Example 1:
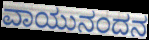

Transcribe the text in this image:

ವಾಯುನಂದನ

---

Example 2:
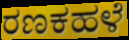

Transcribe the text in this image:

ರಣಕಹಳೆ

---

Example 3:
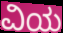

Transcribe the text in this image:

ವಿಯ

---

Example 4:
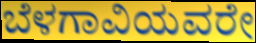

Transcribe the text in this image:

ಬೆಳಗಾವಿಯವರೇ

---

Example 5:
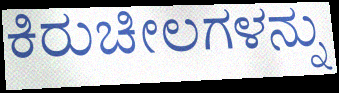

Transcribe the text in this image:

ಕಿರುಚೀಲಗಳನ್ನು